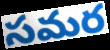
సమర